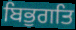
ਬਿਭੁਗਤਿ